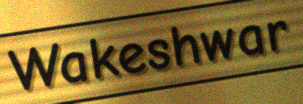
Wakeshwar